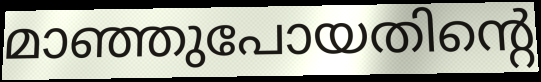
മാഞ്ഞുപോയതിന്റെ